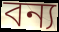
বন্য